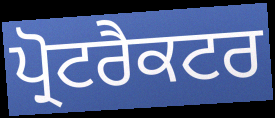
ਪ੍ਰੋਟਰੈਕਟਰ